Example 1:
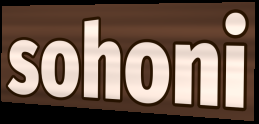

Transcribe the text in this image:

sohoni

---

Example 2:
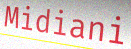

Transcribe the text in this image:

Midiani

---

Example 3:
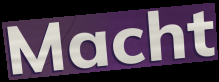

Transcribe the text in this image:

Macht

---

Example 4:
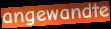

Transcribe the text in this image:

angewandte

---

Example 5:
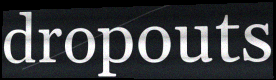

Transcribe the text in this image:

dropouts